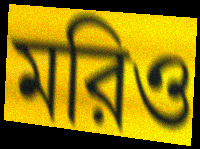
মরিও